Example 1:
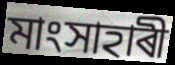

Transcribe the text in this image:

মাংসাহাৰী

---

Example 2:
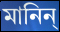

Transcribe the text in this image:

মানিন্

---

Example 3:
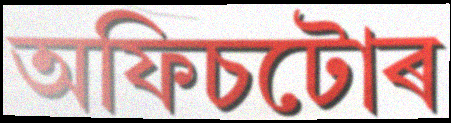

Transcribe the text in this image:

অফিচটোৰ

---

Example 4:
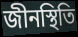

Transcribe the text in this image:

জীনস্থিতি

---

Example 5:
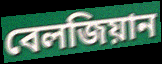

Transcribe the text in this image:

বেলজিয়ান